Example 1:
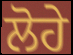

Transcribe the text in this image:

ਲੋਹੇ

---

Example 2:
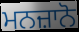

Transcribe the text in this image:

ਮਨਜ਼ਾਨੋ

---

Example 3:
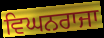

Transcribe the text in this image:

ਵਿਘਨਰਾਜਾ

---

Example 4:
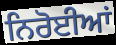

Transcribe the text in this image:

ਨਿਰੋਈਆਂ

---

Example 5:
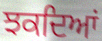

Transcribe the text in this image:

ਝਕਦਿਆਂ